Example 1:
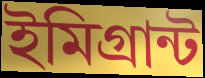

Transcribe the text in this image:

ইমিগ্রান্ট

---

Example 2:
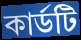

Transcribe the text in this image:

কার্ডটি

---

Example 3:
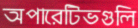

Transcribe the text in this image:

অপারেটিভগুলি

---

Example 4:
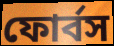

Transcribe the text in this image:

ফোর্বস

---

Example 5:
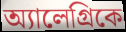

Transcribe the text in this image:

অ্যালেগ্রিকে